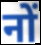
नों